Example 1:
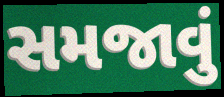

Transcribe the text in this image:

સમજાવું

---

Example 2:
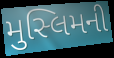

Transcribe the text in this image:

મુસ્લિમની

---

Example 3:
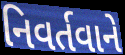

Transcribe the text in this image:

નિવર્તવાને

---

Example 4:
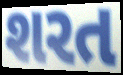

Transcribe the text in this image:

શરત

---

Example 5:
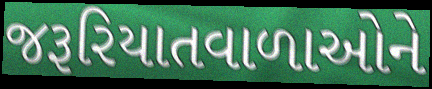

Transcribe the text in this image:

જરૂરિયાતવાળાઓને